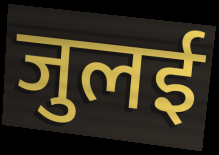
जुलई